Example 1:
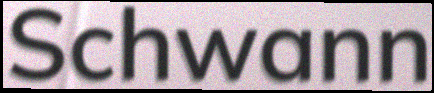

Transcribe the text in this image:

Schwann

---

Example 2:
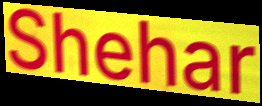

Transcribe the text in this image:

Shehar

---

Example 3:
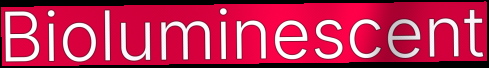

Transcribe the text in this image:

Bioluminescent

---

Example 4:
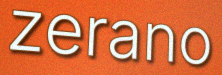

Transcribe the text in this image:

zerano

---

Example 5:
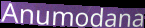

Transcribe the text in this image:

Anumodana